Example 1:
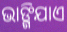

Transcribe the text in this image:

ଭାଙ୍ଗିଯାଏ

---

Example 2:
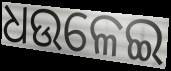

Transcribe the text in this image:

ଧଉଳେଇ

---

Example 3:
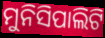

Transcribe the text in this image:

ମୁନିସିପାଲିଟି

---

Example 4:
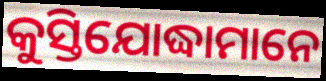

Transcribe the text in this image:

କୁସ୍ତିଯୋଦ୍ଧାମାନେ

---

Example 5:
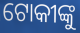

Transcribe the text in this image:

ଟୋକୀଙ୍କୁ